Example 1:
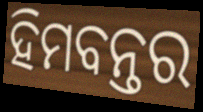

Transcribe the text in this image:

ହିମବନ୍ତର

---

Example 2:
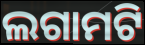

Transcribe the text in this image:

ଲଗାମଟି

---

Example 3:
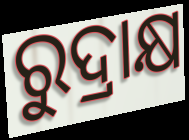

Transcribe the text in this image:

ରୁଦ୍ରାକ୍ଷ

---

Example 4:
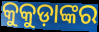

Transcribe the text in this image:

କୁକୁଡ଼ାଙ୍କର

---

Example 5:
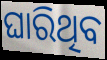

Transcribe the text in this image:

ଘାରିଥିବ